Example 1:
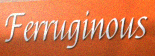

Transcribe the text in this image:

Ferruginous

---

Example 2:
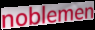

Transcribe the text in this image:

noblemen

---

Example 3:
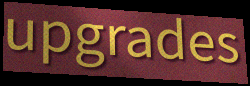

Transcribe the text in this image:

upgrades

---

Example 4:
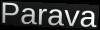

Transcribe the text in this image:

Parava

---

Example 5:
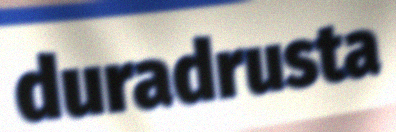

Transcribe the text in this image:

duradrusta